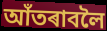
আঁতৰাবলৈ